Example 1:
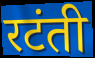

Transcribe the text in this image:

रटंती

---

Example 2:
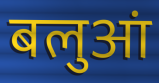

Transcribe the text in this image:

बलुआं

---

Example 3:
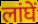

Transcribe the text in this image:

लांघें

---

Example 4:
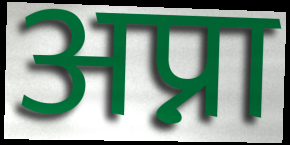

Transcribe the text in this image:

अप्ना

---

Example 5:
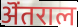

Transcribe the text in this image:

ऄंतराल